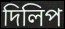
দিলিপ